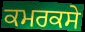
ਕਮਰਕਸੇ